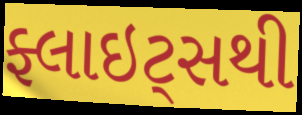
ફ્લાઇટ્સથી